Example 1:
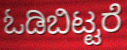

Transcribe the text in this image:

ಓಡಿಬಿಟ್ಟರೆ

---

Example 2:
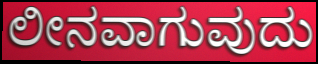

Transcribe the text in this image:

ಲೀನವಾಗುವುದು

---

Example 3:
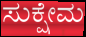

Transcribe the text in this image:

ಸುಕ್ಷೇಮ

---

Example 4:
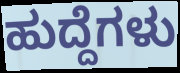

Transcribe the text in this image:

ಹುದ್ದೆಗಳು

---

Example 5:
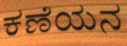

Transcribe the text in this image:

ಕಣೆಯನ